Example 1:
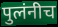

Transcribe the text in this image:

पुलंनीच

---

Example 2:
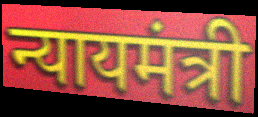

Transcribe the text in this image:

न्यायमंत्री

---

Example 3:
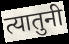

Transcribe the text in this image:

त्यातुनी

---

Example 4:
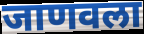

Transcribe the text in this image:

जाणवला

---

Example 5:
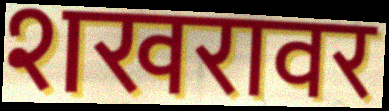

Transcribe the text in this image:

शखरावर